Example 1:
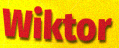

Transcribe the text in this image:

Wiktor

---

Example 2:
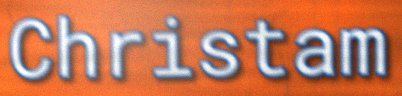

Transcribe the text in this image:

Christam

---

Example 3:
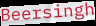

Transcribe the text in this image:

Beersingh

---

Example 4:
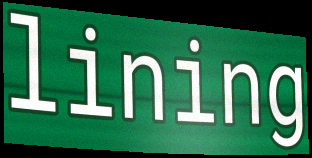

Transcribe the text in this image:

lining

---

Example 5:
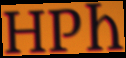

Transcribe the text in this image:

HPh